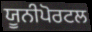
ਯੂਨੀਪੋਰਟਲ